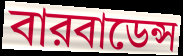
বারবাডেন্স